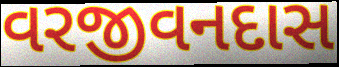
વરજીવનદાસ